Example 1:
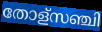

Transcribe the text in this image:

തോള്സഞ്ചി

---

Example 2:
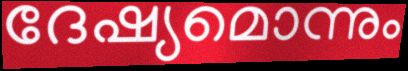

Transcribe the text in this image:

ദേഷ്യമൊന്നും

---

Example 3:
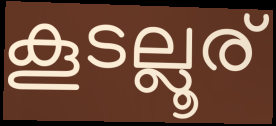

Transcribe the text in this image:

കൂടല്ലൂര്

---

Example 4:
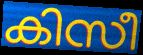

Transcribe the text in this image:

കിസീ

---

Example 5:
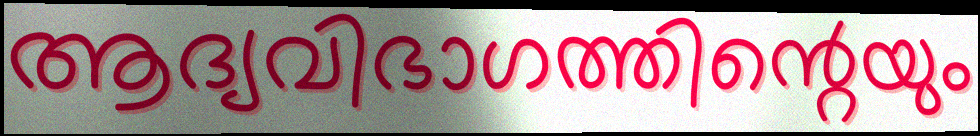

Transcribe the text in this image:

ആദ്യവിഭാഗത്തിന്റെയും